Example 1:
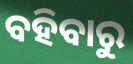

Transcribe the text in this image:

ବହିବାରୁ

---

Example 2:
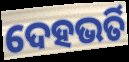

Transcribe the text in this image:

ଦେହଭର୍ତି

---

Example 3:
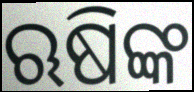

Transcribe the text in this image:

ଋଷିଙ୍କ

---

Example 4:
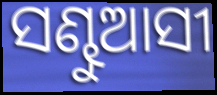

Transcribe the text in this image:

ସଣ୍ଢୁଆସୀ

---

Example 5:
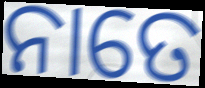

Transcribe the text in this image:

ନାତେ